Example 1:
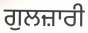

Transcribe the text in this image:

ਗੁਲਜ਼ਾਰੀ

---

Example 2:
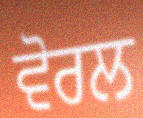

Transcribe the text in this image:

ਵੋਰਲ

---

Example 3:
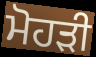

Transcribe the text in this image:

ਮੋਹੜੀ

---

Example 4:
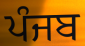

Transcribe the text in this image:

ਪੰਜਬ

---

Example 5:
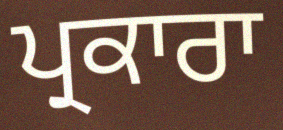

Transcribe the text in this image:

ਪ੍ਰਕਾਰਾ